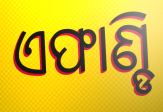
ଏଫାଣ୍ଡି